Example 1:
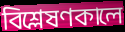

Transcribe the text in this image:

বিশ্লেষণকালে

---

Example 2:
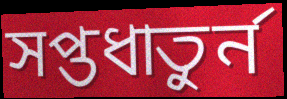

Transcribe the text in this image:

সপ্তধাতুর্ন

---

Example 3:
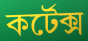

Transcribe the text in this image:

কর্টেক্স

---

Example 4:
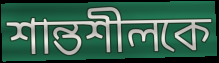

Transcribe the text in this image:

শান্তশীলকে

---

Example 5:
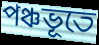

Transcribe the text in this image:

পঞ্চভূতে